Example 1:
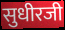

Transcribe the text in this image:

सुधीरजी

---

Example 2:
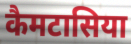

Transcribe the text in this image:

कैमटासिया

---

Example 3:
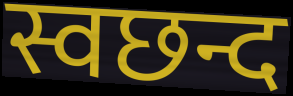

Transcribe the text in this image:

स्वछन्द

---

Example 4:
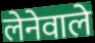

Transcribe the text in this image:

लेनेवाले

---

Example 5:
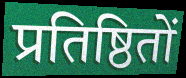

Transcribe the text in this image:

प्रतिष्ठितों